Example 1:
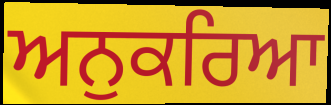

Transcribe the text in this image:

ਅਨੁਕਰਿਆ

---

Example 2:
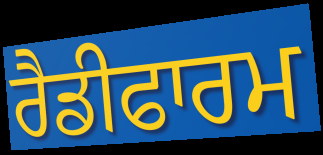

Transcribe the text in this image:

ਰੈਡੀਫਾਰਮ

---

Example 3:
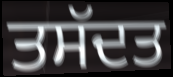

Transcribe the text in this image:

ਤਸੱਦਤ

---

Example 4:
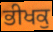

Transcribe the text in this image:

ਭੀਖਕੁ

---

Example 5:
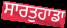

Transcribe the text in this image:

ਸਾਰਤੁਹਾਡਾ